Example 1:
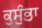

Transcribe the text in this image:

ਕੁਸੁੰਭਾ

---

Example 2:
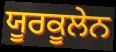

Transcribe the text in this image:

ਯੂਰਕੂਲੇਨ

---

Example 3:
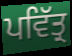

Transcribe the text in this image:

ਪਵਿੱਤ੍ਰ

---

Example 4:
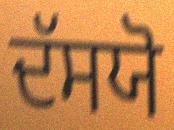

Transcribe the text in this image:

ਦੱਸਯੋ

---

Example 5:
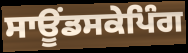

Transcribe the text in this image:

ਸਾਊਂਡਸਕੇਪਿੰਗ